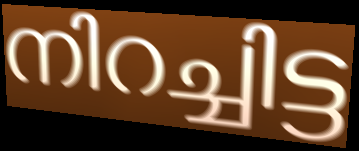
നിറച്ചിട്ട